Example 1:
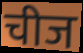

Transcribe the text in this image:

चीज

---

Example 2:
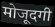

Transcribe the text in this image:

मोजूदगी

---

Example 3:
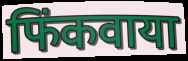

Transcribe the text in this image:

फिंकवाया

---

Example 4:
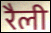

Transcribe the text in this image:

रैली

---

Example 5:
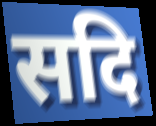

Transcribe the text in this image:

सदि